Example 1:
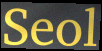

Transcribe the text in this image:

Seol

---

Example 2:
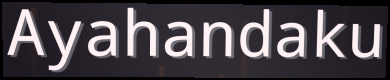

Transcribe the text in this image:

Ayahandaku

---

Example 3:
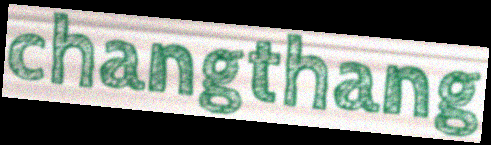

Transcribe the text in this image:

changthang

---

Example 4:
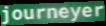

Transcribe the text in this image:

journeyer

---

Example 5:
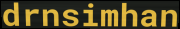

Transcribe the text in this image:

drnsimhan